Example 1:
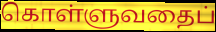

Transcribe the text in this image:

கொள்ளுவதைப்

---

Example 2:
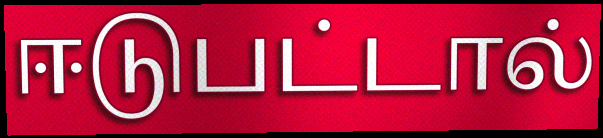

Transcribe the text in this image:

ஈடுபட்டால்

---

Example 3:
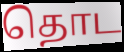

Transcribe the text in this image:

தொட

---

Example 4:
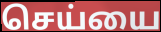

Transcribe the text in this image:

செய்யை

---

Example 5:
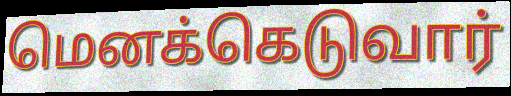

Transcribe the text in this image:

மெனக்கெடுவார்